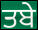
ਤਬੇ